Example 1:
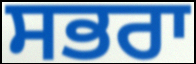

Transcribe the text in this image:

ਸਭਰਾ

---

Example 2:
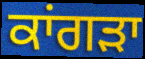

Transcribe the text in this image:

ਕਾਂਗੜਾ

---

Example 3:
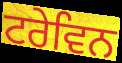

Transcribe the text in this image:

ਟਰੇਵਿਨ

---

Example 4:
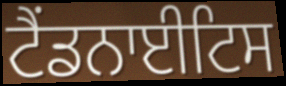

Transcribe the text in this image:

ਟੈਂਡਨਾਈਟਿਸ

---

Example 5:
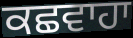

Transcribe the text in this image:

ਕਛਵਾਹਾ